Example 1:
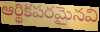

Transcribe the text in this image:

ఆర్థికపరమైనవి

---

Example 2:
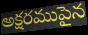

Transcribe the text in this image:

అక్షరముపైన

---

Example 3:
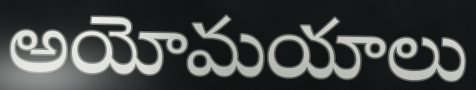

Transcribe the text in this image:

అయోమయాలు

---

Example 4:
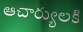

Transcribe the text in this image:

ఆచార్యులకి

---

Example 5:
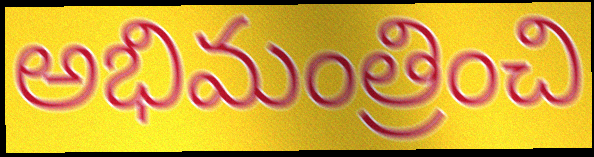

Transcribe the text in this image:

అభిమంత్రించి